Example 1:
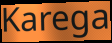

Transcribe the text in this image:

Karega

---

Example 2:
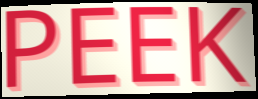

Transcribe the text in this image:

PEEK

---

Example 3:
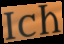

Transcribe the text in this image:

Ich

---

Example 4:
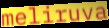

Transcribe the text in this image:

meliruva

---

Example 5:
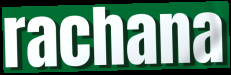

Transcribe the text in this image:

rachana